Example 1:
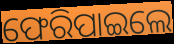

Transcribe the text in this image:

ଫେରିପାଇଲେ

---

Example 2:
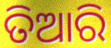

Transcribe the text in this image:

ତିଆରି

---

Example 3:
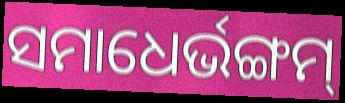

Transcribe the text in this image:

ସମାଧେର୍ଭଙ୍ଗମ୍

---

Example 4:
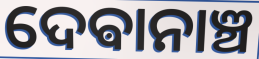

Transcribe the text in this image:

ଦେଵାନାଞ୍ଚ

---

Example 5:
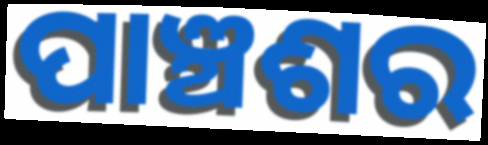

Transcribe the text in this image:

ପାଞ୍ଚଶର